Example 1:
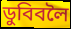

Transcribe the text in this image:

ডুবিবলৈ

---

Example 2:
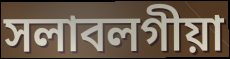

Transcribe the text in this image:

সলাবলগীয়া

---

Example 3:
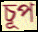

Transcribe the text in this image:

চূপ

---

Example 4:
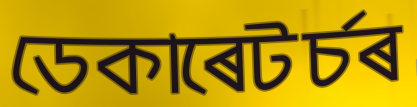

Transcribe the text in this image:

ডেকাৰেটৰ্চৰ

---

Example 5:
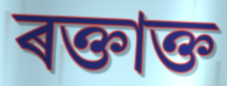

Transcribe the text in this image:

ৰক্তাক্ত